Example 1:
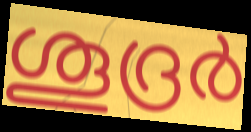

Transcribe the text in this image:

ശൂദ്രർ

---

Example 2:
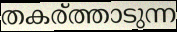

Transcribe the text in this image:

തകര്ത്താടുന്ന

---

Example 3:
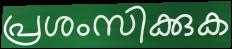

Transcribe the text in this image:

പ്രശംസിക്കുക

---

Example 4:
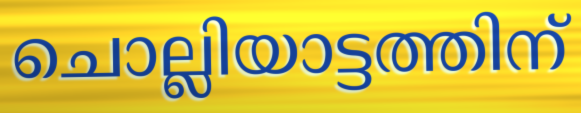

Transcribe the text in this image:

ചൊല്ലിയാട്ടത്തിന്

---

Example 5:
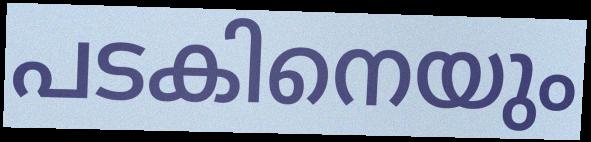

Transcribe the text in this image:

പടകിനെയും